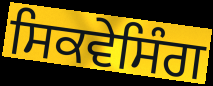
ਸਿਕਵੇਸਿੰਗ